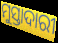
ମୁସ୍ତାଦାରୀ